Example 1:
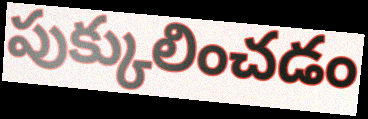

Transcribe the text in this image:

పుక్కులించడం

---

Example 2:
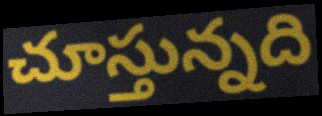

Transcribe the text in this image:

చూస్తున్నది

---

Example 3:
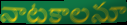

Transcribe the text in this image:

నాటకాలనూ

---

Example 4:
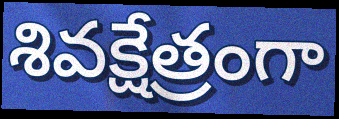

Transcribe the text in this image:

శివక్షేత్రంగా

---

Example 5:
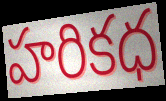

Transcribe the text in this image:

హరికధ